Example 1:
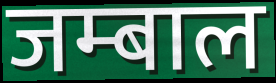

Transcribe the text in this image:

जम्बाल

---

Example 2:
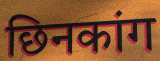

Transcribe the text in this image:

छिनकांग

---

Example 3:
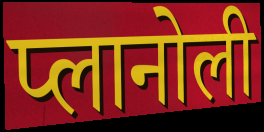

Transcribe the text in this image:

प्लानोली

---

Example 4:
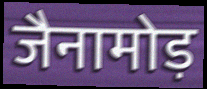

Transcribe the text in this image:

जैनामोड़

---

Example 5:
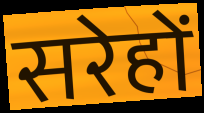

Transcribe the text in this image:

सरेहों